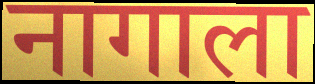
नागाला